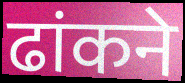
ढांकने